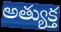
అత్యుక్త